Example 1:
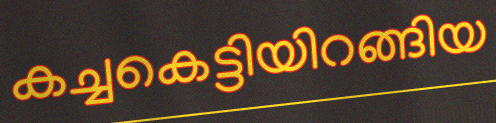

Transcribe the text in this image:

കച്ചകെട്ടിയിറങ്ങിയ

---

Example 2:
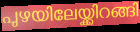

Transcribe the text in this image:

പുഴയിലേയ്ക്കിറങ്ങി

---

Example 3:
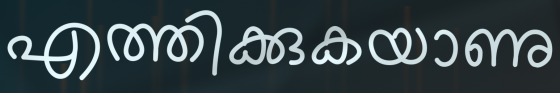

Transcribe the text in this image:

എത്തിക്കുകയാണു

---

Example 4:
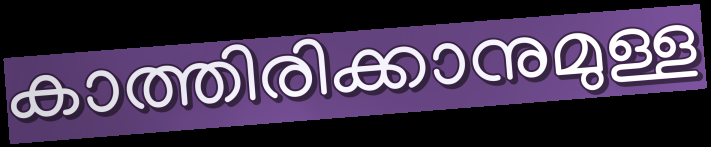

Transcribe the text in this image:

കാത്തിരിക്കാനുമുള്ള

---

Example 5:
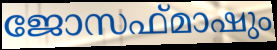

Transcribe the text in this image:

ജോസഫ്മാഷും